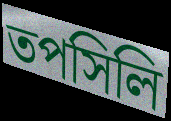
তপসিলি